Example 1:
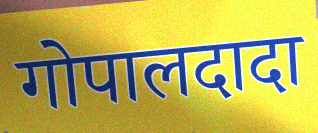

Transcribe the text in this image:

गोपालदादा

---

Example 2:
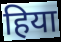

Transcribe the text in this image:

हिया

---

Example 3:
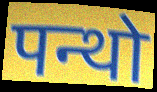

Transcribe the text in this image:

पन्थो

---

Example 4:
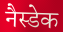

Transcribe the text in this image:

नैस्डेक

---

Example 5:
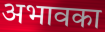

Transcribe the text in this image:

अभावका